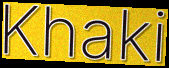
Khaki